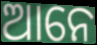
ଆନେ